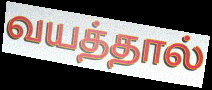
வயத்தால்